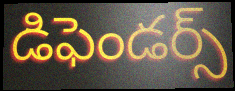
డిఫెండర్స్